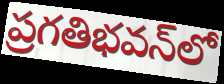
ప్రగతిభవన్‌లో